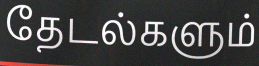
தேடல்களும்